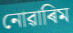
নোৱাৰিম